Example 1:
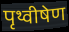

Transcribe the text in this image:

पृथ्वीषेण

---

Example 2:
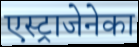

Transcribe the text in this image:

एस्ट्राजेनेका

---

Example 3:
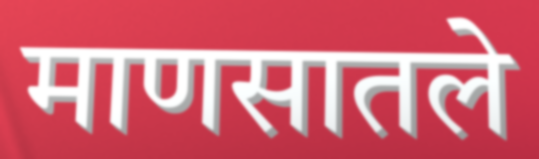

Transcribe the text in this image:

माणसातले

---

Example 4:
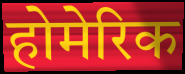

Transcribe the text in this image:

होमेरिक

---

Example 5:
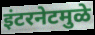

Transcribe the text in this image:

इंटरनेटमुळे